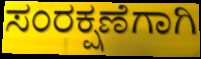
ಸಂರಕ್ಷಣೆಗಾಗಿ